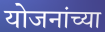
योजनांच्या